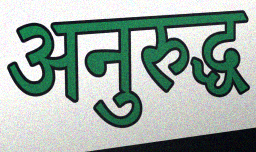
अनुरुद्ध